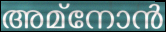
അമ്നോൻ